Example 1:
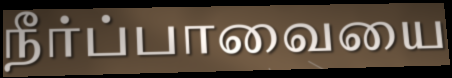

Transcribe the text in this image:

நீர்ப்பாவையை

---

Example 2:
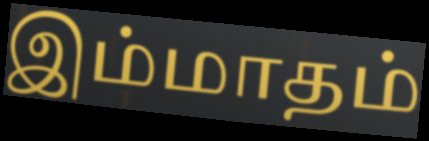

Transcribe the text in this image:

இம்மாதம்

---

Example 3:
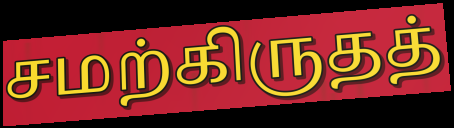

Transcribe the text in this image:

சமற்கிருதத்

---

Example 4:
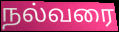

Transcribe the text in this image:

நல்வரை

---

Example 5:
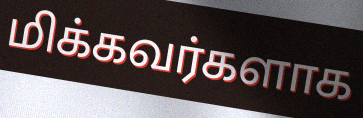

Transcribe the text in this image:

மிக்கவர்களாக